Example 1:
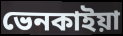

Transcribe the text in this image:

ভেনকাইয়া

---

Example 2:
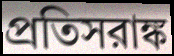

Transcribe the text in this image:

প্রতিসরাঙ্ক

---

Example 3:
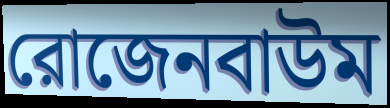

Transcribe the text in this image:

রোজেনবাউম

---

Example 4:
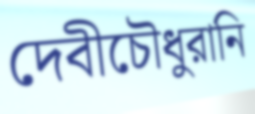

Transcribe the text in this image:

দেবীচৌধুরানি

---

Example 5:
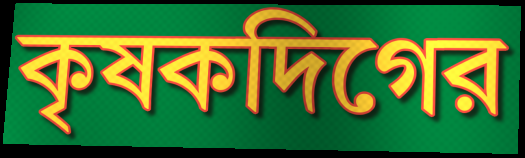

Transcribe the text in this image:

কৃষকদিগের